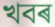
খবৰ